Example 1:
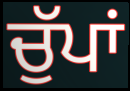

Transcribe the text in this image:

ਚੁੱਪਾਂ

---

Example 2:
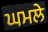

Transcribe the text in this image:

ਘਮਲੇ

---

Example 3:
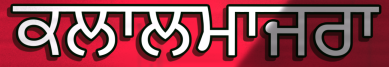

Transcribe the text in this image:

ਕਲਾਲਮਾਜਰਾ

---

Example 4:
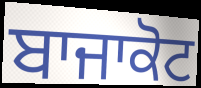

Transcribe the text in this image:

ਬਾਜਾਕੋਟ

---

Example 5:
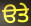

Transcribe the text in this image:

ੳਤੇ